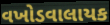
વખોડવાલાયક